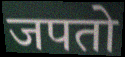
जपतो